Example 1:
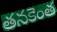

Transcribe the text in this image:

తనకెంత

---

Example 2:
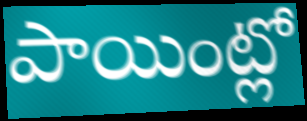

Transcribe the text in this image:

పాయింట్లో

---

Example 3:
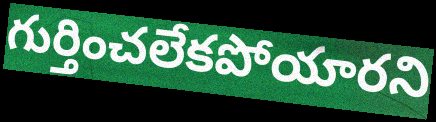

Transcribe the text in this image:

గుర్తించలేకపోయారని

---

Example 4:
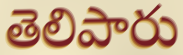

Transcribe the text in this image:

తెలిపారు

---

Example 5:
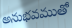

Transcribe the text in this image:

అనుభవముతో